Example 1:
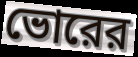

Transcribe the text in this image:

ভোরের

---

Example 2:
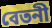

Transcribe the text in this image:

বেতনী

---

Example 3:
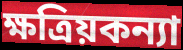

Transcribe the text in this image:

ক্ষত্রিয়কন্যা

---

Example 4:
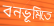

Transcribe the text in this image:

বনভূমিতে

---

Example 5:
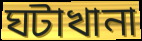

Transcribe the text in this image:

ঘটাখানা